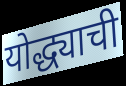
योद्ध्याची